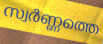
സ്വർണ്ണത്തെ